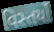
વિસ્તર્યો